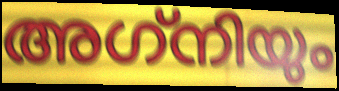
അഗ്‌നിയും